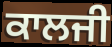
ਕਾਲਜੀ